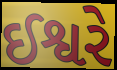
ઈશ્વરે